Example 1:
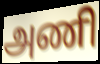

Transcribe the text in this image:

அணி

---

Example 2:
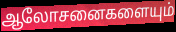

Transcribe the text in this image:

ஆலோசனைகளையும்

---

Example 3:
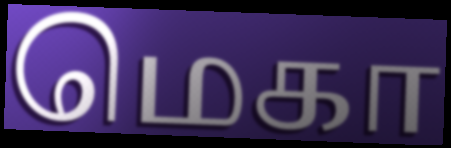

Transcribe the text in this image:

மெகா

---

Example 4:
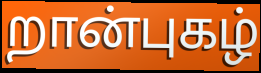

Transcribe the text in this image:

றான்புகழ்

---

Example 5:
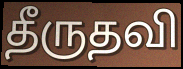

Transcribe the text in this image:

தீருதவி